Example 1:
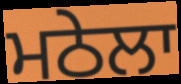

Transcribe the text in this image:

ਮਠੇਲਾ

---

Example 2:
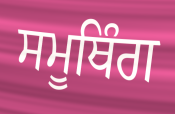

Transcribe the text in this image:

ਸਮੂਥਿੰਗ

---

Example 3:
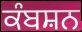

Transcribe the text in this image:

ਕੰਬਸ਼ਨ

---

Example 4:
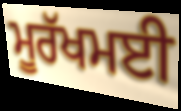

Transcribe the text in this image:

ਮੂਰੱਖਮਈ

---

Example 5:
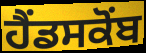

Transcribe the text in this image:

ਹੈਂਡਸਕੋਂਬ